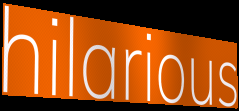
hilarious